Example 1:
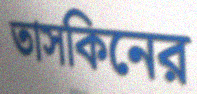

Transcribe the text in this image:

তাসকিনের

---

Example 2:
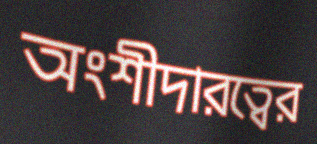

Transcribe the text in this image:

অংশীদারত্বের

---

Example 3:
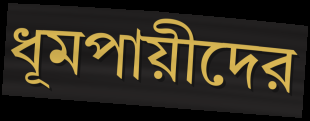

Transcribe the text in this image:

ধূমপায়ীদের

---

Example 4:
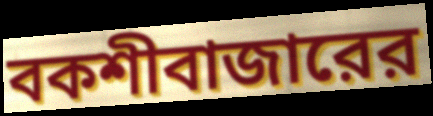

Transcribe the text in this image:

বকশীবাজারের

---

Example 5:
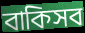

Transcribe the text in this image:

বাকিসব